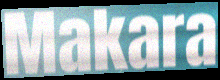
Makara